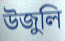
উজুলি